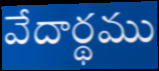
వేదార్థము